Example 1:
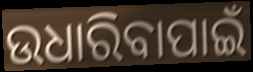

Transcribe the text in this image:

ଉଧାରିବାପାଇଁ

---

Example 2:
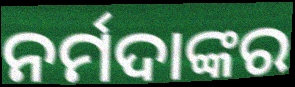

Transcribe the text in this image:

ନର୍ମଦାଙ୍କର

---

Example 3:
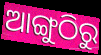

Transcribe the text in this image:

ଆଙ୍ଗୁଠିରୁ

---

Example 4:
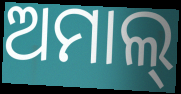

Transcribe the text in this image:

ଅମାଲ୍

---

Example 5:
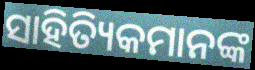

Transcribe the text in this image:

ସାହିତ୍ୟିକମାନଙ୍କ